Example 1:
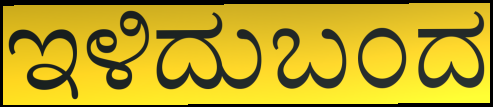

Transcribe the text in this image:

ಇಳಿದುಬಂದ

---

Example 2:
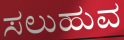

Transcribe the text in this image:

ಸಲುಹುವ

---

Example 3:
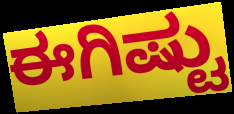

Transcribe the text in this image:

ಈಗಿಷ್ಟು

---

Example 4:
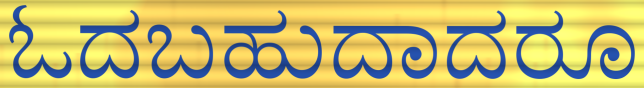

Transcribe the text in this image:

ಓದಬಹುದಾದರೂ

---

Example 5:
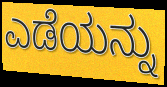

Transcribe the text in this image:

ಎಡೆಯನ್ನು